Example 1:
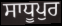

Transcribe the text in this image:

ਸਾਧੂਪੁਰ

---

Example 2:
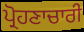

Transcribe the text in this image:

ਪ੍ਰੋਹਣਾਚਾਰੀ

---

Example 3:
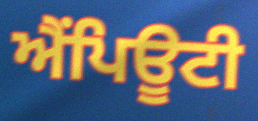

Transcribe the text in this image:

ਐਂਪਿਊਟੀ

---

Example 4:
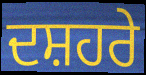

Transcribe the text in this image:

ਦਸ਼ਹਰੇ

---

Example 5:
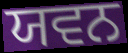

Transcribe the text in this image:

ਯਵਨ